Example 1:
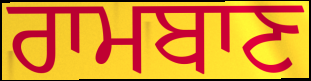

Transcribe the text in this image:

ਰਾਮਬਾਣ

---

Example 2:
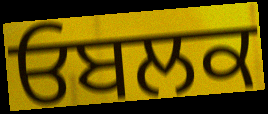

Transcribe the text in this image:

ਓਬਲਕ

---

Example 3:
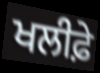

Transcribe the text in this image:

ਖਲੀਫ਼ੇ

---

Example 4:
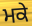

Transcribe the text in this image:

ਮਕੇ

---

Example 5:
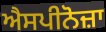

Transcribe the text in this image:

ਐਸਪੀਨੋਜ਼ਾ